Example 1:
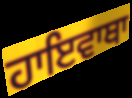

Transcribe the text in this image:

ਹਾਇਵਾਥਾ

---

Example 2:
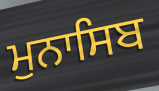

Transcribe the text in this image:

ਮੁਨਾਸਿਬ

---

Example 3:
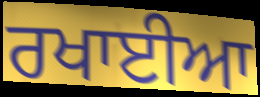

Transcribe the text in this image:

ਰਖਾਈਆ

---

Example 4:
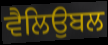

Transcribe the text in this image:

ਵੈਲਿਉਬਲ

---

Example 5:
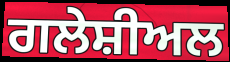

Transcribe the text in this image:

ਗਲੇਸ਼ੀਅਲ